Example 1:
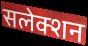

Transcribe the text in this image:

सलेक्शन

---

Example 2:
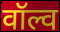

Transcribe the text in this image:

वॉल्व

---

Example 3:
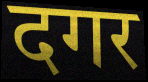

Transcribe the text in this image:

दगर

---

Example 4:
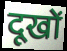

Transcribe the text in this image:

दूखों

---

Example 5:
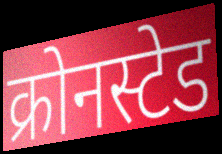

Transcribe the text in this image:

क्रोनस्टेड